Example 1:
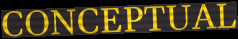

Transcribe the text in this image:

CONCEPTUAL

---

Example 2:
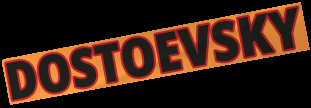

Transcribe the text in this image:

DOSTOEVSKY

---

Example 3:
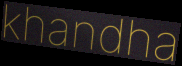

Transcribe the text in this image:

khandha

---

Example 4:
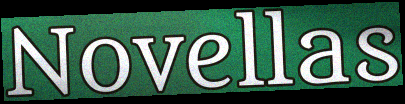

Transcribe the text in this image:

Novellas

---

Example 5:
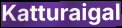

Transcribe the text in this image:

Katturaigal